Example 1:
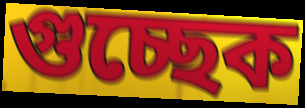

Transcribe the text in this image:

গুচ্ছেক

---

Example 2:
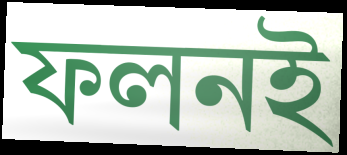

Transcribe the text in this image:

ফলনই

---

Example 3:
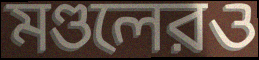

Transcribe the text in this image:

মণ্ডলেরও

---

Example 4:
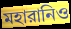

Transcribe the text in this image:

মহারানিও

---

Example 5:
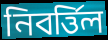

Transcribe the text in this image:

নিবর্ত্তিল